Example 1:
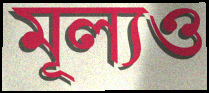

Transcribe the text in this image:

মূল্যও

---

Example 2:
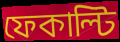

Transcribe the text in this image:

ফেকাল্টি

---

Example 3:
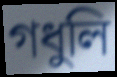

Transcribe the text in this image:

গধুলি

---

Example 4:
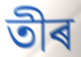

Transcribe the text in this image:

তীৰ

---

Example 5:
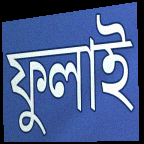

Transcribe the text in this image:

ফুলাই